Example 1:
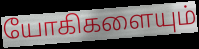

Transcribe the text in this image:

யோகிகளையும்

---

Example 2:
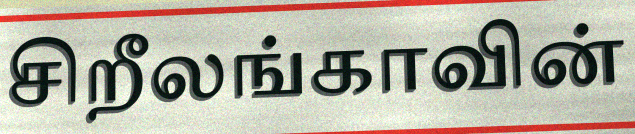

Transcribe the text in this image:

சிறீலங்காவின்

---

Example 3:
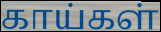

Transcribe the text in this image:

காய்கள்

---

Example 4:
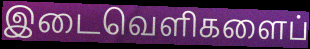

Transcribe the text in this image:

இடைவெளிகளைப்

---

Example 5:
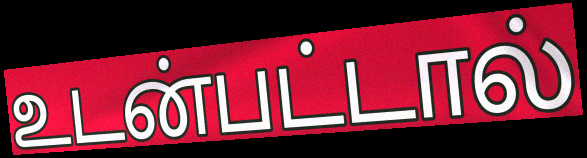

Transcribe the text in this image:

உடன்பட்டால்